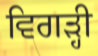
ਵਿਗੜ੍ਹੀ